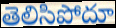
తెలిసిపోదూ